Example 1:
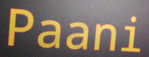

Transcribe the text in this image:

Paani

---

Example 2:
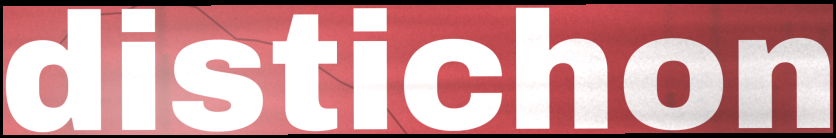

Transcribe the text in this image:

distichon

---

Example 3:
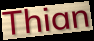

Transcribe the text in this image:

Thian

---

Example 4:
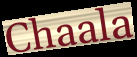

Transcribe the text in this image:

Chaala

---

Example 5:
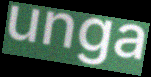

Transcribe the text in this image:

unga